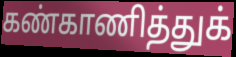
கண்காணித்துக்